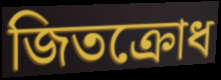
জিতক্রোধ